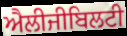
ਐਲੀਜੀਬਿਲਟੀ